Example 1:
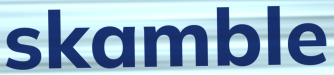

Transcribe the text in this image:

skamble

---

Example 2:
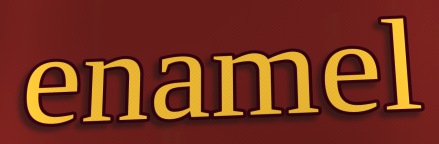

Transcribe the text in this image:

enamel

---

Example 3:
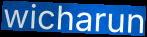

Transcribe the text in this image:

wicharun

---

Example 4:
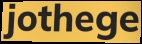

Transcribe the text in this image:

jothege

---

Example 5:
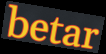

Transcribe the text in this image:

betar